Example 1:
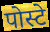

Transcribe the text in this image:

पोस्टे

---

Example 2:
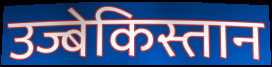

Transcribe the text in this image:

उज्बेकिस्तान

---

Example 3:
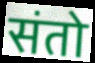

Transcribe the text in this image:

संतो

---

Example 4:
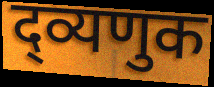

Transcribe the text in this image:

द्व्यणुक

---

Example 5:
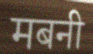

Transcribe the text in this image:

मबनी